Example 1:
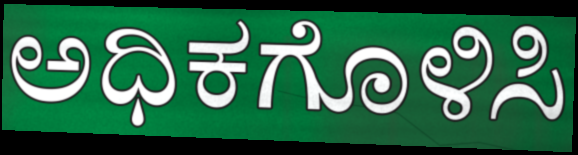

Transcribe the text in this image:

ಅಧಿಕಗೊಳಿಸಿ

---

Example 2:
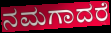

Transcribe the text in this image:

ನಮಗಾದರೆ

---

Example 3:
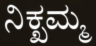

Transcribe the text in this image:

ನಿಕ್ಖಮ್ಮ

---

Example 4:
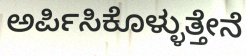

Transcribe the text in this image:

ಅರ್ಪಿಸಿಕೊಳ್ಳುತ್ತೇನೆ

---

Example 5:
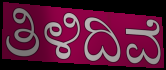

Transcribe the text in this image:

ತಿಳಿದಿವೆ